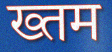
ख्तम